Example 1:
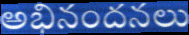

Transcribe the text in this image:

అభినందనలు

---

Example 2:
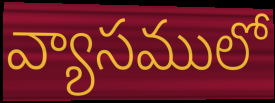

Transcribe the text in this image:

వ్యాసములో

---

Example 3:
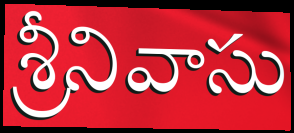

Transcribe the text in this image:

శ్రీనివాసు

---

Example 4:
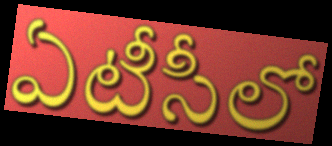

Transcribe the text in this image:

ఏటీసీలో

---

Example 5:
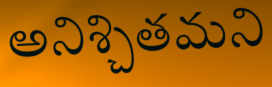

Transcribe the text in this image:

అనిశ్చితమని